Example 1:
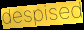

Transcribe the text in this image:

despised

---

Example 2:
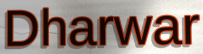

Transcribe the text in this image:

Dharwar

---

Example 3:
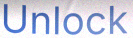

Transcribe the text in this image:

Unlock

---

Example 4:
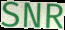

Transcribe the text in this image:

SNR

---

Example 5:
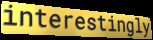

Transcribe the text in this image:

interestingly